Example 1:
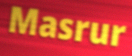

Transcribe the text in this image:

Masrur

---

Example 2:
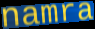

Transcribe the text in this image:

namra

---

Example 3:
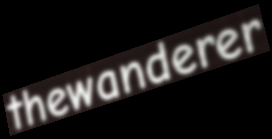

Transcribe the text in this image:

thewanderer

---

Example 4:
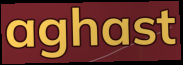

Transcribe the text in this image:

aghast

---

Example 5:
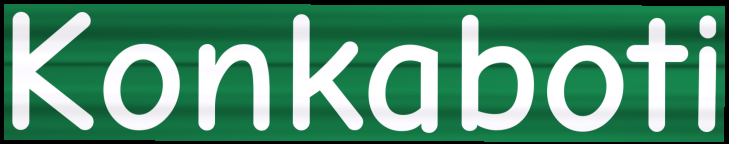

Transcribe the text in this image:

Konkaboti